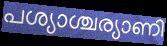
പശ്യാശ്ചര്യാണി